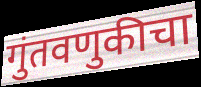
गुंतवणुकीचा